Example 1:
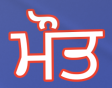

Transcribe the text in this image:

ਮੌਤ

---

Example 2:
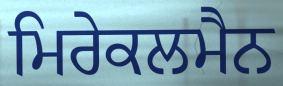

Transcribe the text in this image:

ਮਿਰੇਕਲਮੈਨ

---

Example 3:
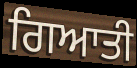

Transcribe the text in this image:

ਗਿਆਤੀ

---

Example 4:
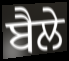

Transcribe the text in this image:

ਬੈਲੇ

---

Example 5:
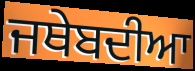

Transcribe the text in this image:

ਜਥੇਬਦੀਆ